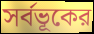
সর্বভূকের